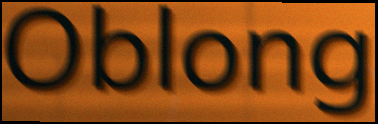
Oblong